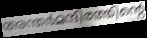
അന്തർമന്ദിരത്തിന്റെ